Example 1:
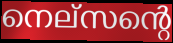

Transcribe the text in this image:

നെല്സന്റെ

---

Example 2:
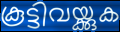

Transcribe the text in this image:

കൂട്ടിവയ്ക്കുക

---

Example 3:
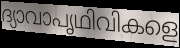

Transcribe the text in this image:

ദ്യാവാപൃഥിവികളെ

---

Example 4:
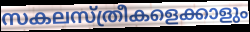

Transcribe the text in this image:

സകലസ്ത്രീകളെക്കാളും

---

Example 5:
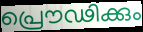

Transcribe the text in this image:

പ്രൌഢിക്കും